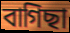
বাগিছা